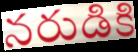
నరుడికి